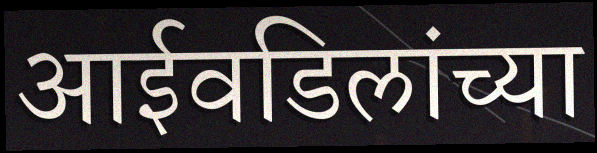
आईवडिलांच्या